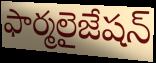
ఫార్మలైజేషన్